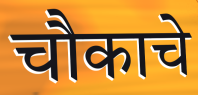
चौकाचे